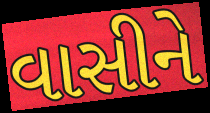
વાસીને